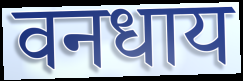
वनधाय